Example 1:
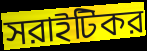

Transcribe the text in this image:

সরাইটিকর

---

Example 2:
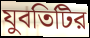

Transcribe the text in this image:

যুবতিটির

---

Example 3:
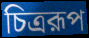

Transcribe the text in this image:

চিত্ররূপ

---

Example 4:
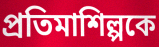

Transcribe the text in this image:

প্রতিমাশিল্পকে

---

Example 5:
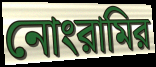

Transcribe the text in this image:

নোংরামির